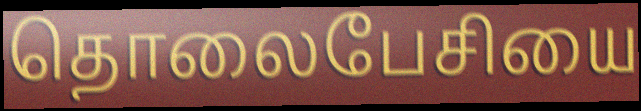
தொலைபேசியை